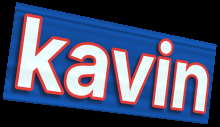
kavin